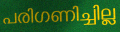
പരിഗണിച്ചില്ല